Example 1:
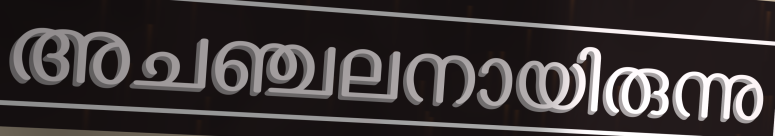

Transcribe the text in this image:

അചഞ്ചലനായിരുന്നു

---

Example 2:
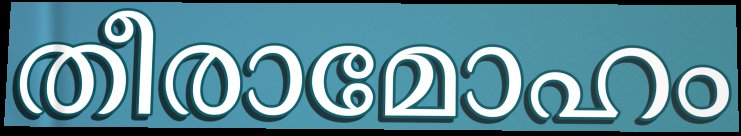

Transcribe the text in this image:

തീരാമോഹം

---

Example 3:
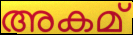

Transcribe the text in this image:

അകമ്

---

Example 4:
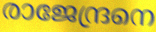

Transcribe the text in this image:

രാജേന്ദ്രനെ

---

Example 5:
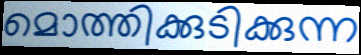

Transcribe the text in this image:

മൊത്തിക്കുടിക്കുന്ന